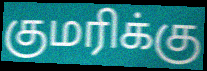
குமரிக்கு